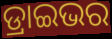
ଡ୍ରାଇଭର